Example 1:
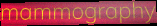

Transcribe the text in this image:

mammography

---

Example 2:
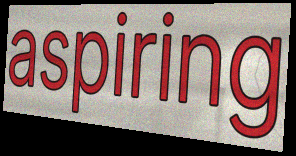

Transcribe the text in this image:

aspiring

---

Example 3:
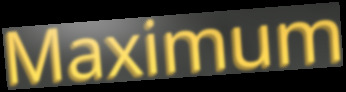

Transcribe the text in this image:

Maximum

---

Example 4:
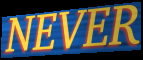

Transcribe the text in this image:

NEVER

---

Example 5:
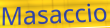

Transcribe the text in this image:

Masaccio